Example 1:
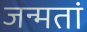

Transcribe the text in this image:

जन्मतां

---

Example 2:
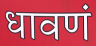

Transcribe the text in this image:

धावणं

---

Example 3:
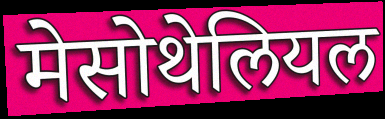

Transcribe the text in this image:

मेसोथेलियल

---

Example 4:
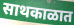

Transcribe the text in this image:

साथकाळात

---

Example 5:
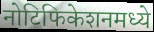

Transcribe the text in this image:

नोटिफिकेशनमध्ये